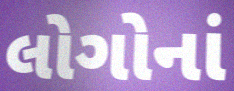
લોગોનાં